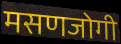
मसणजोगी